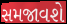
સમજાવશે